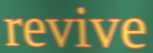
revive